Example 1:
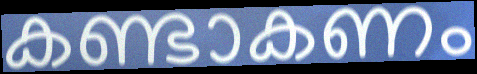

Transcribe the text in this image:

കണ്ടാകണം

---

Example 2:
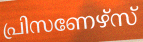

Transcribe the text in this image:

പ്രിസണേഴ്സ്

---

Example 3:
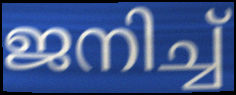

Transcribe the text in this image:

ജനിച്ച്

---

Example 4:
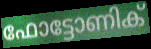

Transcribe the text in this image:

ഫോട്ടോണിക്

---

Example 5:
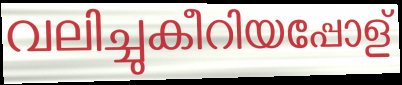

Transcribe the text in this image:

വലിച്ചുകീറിയപ്പോള്